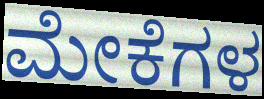
ಮೇಕೆಗಳ